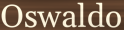
Oswaldo